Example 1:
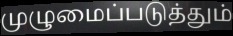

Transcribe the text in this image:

முழுமைப்படுத்தும்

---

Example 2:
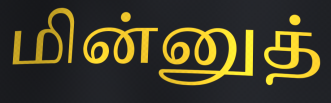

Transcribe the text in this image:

மின்னுத்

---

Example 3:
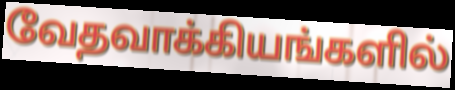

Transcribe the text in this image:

வேதவாக்கியங்களில்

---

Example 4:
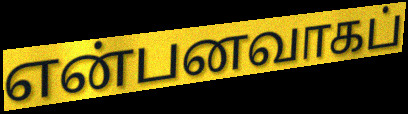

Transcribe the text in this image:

என்பனவாகப்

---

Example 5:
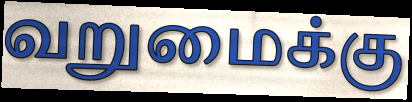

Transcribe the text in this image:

வறுமைக்கு